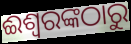
ଈଶ୍ଵରଙ୍କଠାରୁ